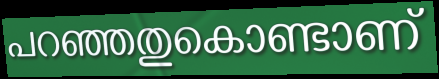
പറഞ്ഞതുകൊണ്ടാണ്